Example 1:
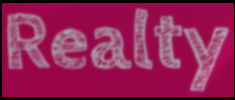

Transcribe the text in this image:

Realty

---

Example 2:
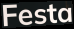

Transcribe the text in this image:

Festa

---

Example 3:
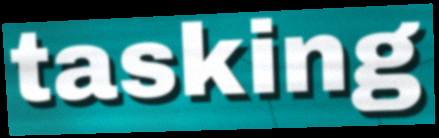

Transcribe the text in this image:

tasking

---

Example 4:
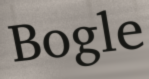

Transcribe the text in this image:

Bogle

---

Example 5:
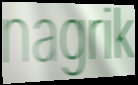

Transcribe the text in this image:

nagrik